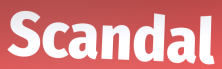
Scandal